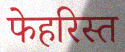
फेहरिस्त